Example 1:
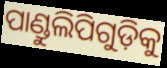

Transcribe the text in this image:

ପାଣ୍ଡୁଲିପିଗୁଡ଼ିକୁ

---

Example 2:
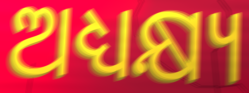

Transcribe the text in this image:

ଅଧ୍ୟକ୍ଷ୍ୟ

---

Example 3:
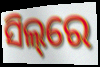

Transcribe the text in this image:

ସିଲ୍‌ରେ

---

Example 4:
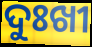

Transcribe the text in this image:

ଦୁଃଖୀ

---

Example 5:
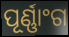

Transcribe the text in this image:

ପୂର୍ଣ୍ଣାଂଗ